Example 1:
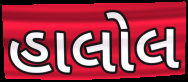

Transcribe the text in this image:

હાલોલ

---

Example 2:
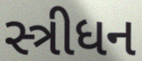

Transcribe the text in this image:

સ્ત્રીધન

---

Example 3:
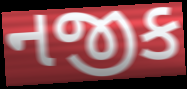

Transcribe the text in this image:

નજીક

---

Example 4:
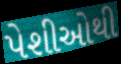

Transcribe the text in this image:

પેશીઓથી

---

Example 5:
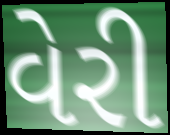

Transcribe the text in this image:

વેરી